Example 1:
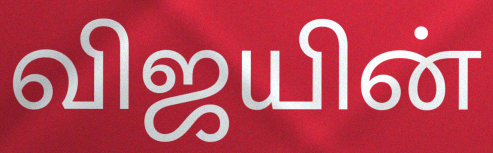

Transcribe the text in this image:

விஜயின்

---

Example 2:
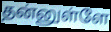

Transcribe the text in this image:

தன்னுள்ளே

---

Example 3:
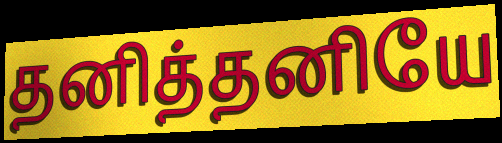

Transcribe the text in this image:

தனித்தனியே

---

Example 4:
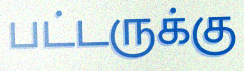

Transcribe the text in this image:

பட்டருக்கு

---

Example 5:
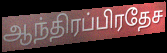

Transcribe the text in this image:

ஆந்திரப்பிரதேச